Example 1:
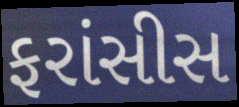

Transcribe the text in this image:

ફરાંસીસ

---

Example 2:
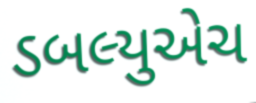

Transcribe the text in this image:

ડબલ્યુએચ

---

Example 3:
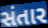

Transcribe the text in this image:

સંતાર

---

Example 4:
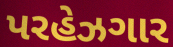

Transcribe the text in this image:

પરહેઝગાર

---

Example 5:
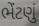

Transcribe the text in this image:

ભેંટણું